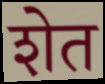
शेत